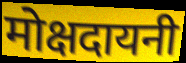
मोक्षदायनी